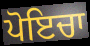
ਪੋਇਚਾ